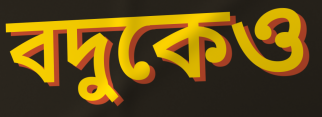
বদুকেও